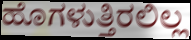
ಹೊಗಳುತ್ತಿರಲಿಲ್ಲ